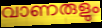
വാണരുളും